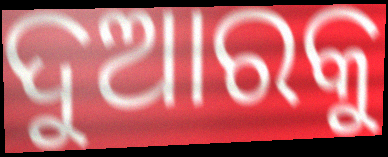
ଦୁଆରକୁ